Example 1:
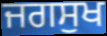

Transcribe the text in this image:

ਜਗਸੁਖ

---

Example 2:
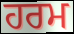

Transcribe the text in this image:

ਹਰਮ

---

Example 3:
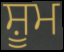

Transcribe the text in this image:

ਸ਼ੂਮ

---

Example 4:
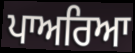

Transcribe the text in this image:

ਪਾਅਰਿਆ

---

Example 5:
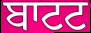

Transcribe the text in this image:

ਬਾਟਟ